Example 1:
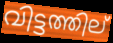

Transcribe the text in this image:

വിട്ടത്തില്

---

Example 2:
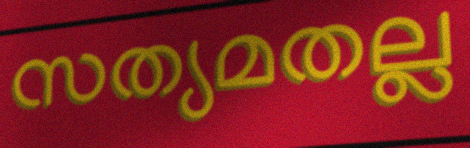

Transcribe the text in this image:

സത്യമതല്ല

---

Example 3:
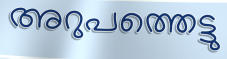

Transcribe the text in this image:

അറുപത്തെട്ടു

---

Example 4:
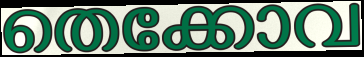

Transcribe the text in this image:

തെക്കോവ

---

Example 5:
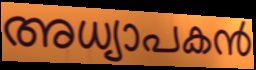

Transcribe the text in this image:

അധ്യാപകൻ